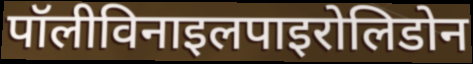
पॉलीविनाइलपाइरोलिडोन